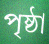
পৃষ্ঠা